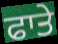
ਫਾਤੇ